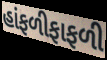
હાંફળીફાફળી